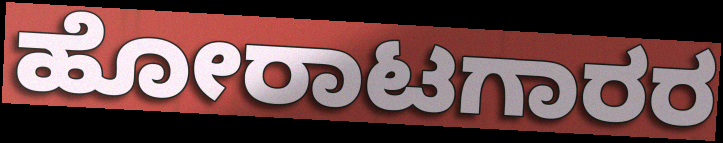
ಹೋರಾಟಗಾರರ